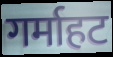
गर्माहट